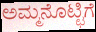
ಅಮ್ಮನೊಟ್ಟಿಗೆ